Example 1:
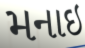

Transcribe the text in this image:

મનાઇ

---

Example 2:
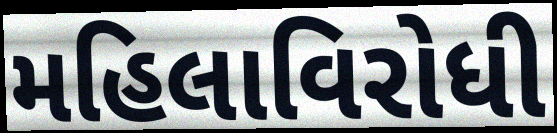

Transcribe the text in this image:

મહિલાવિરોધી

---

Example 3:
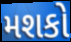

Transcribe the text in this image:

મશકો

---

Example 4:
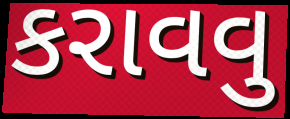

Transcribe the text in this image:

કરાવવુ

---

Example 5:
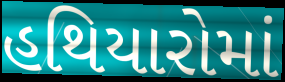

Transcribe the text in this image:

હથિયારોમાં